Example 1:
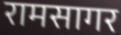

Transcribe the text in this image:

रामसागर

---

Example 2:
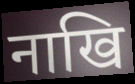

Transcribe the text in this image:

नाखि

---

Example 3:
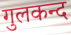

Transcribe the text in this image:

गुलकन्द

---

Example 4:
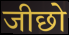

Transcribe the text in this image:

जीछो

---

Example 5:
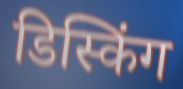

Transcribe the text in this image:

डिस्किंग